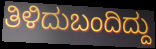
ತಿಳಿದುಬಂದಿದ್ದು